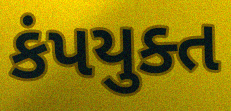
કંપયુક્ત